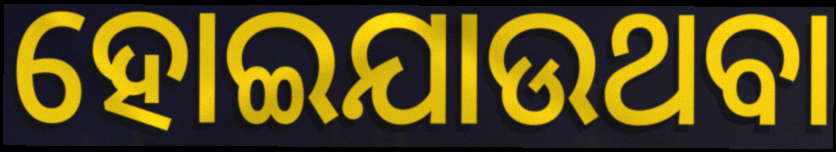
ହୋଇଯାଉଥବା